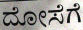
ದೋಸೆಗೆ